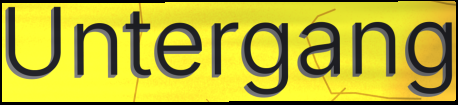
Untergang